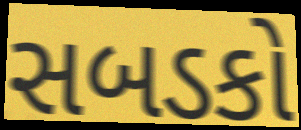
સબડકો